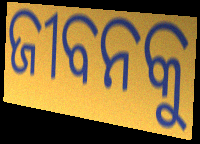
ଜୀବନକୁ